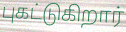
புகட்டுகிறார்